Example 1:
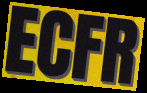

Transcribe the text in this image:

ECFR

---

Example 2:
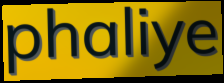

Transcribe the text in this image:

phaliye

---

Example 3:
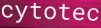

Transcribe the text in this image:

cytotec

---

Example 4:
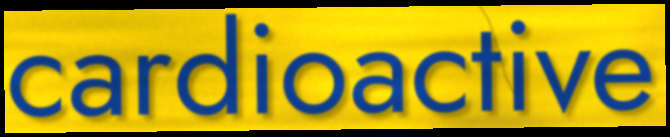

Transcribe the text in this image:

cardioactive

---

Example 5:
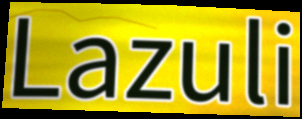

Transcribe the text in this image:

Lazuli